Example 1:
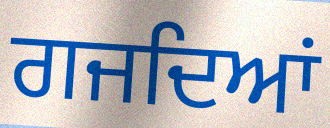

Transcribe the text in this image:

ਗਜਦਿਆਂ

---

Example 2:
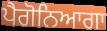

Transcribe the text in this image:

ਪੈਗੋਨਿਆਗਾ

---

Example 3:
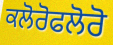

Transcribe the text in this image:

ਕਲੋਰੋਫਲੋਰੋ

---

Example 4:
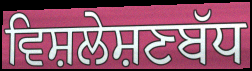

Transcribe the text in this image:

ਵਿਸ਼ਲੇਸ਼ਣਬੱਧ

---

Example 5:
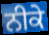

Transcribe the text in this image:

ਨੀਕੇ